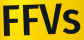
FFVs